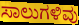
ಸಾಲುಗಳಿವು